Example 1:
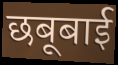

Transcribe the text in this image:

छबूबाई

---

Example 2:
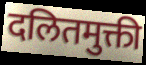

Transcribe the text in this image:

दलितमुक्ती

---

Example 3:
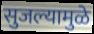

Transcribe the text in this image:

सुजल्यामुळे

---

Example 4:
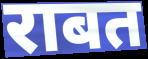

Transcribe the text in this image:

राबत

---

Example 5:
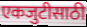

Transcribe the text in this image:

एकजुटीसाठी